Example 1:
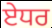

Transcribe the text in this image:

ਏਧਰ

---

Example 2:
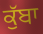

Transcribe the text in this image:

ਕੁੱਬਾ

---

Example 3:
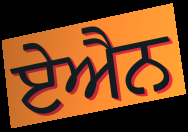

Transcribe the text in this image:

ਏਐਨ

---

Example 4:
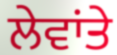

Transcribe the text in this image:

ਲੇਵਾਂਤੇ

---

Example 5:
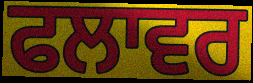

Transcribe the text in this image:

ਫਲਾਵਰ